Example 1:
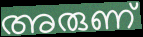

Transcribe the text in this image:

അരുണ്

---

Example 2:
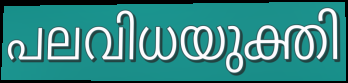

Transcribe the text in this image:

പലവിധയുക്തി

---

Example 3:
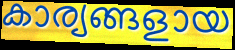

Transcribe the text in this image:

കാര്യങ്ങളായ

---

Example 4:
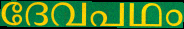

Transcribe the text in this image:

ദേവപഥം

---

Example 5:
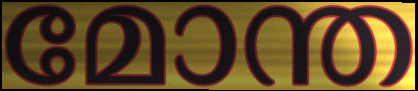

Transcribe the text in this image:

മോന്ത